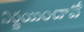
నిర్ణయించావో